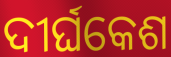
ଦୀର୍ଘକେଶ